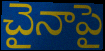
చైనాపై